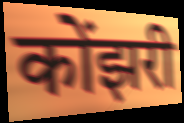
कोंझरी